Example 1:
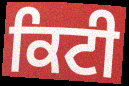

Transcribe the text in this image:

ਕਿਟੀ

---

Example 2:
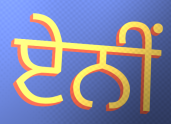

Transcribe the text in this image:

ਏਨੀਂ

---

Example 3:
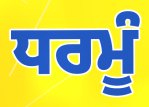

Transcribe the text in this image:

ਧਰਮੂੰ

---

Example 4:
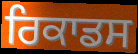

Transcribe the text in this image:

ਰਿਕਾਡਸ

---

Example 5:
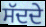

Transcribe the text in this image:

ਸੱਦਦੇ